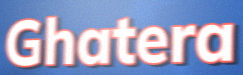
Ghatera